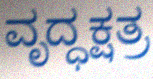
ವೃದ್ಧಕ್ಷತ್ರ